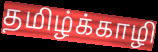
தமிழ்க்காழி